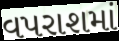
વપરાશમાં